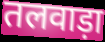
तलवाड़ा